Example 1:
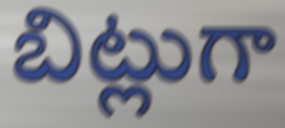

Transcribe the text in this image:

బిట్లుగా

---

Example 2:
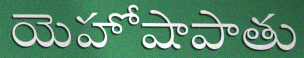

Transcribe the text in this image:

యెహోషాపాతు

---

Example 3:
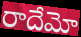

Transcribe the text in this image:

రాదేమో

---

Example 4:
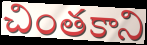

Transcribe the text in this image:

చింతకాని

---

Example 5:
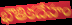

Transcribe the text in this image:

భౌతికదేహం